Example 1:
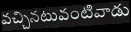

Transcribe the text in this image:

వచ్చినటువంటివాడు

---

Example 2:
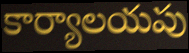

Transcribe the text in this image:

కార్యాలయపు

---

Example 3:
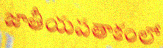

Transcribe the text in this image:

జాతీయపతాకంలో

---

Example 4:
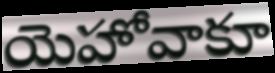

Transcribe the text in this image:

యెహోవాకూ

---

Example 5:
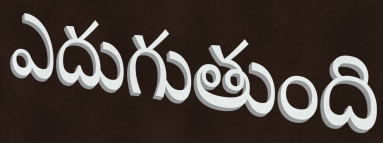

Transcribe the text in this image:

ఎదుగుతుంది